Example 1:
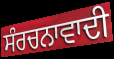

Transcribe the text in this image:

ਸੰਰਚਨਾਵਾਦੀ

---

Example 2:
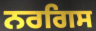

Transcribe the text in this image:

ਨਰਗਿਸ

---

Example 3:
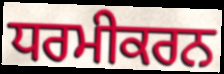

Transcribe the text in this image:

ਧਰਮੀਕਰਨ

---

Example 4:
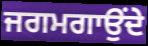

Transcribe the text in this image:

ਜਗਮਗਾਉਂਦੇ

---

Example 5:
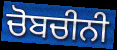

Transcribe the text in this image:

ਚੋਬਚੀਨੀ